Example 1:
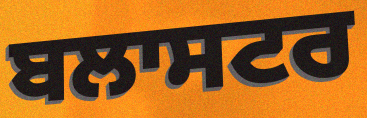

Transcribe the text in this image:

ਬਲਾਸਟਰ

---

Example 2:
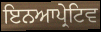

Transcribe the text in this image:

ਇਨਆਪ੍ਰੇਟਿਵ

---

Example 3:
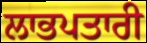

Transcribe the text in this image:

ਲਾਭਪਤਾਰੀ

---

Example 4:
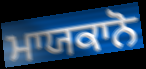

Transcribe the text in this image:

ਮਾਯਕਾਨੋ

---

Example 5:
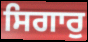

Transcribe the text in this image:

ਸਿਗਾਰੁ